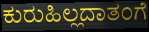
ಕುರುಹಿಲ್ಲದಾತಂಗೆ